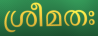
ശ്രീമതഃ